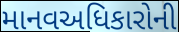
માનવઅધિકારોની